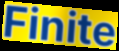
Finite